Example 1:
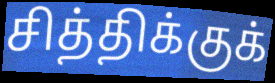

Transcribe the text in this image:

சித்திக்குக்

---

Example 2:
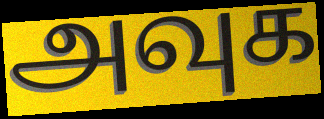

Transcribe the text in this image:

அவுக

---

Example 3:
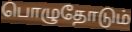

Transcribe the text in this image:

பொழுதோடும்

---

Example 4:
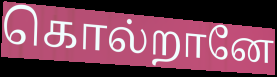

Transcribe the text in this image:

கொல்றானே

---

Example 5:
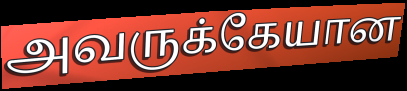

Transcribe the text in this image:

அவருக்கேயான